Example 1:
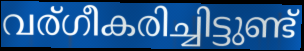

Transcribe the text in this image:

വര്ഗീകരിച്ചിട്ടുണ്ട്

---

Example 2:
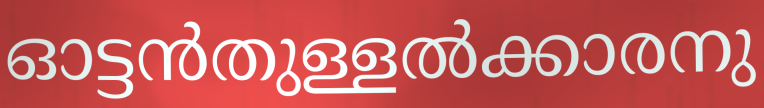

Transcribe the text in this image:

ഓട്ടൻതുള്ളൽക്കാരനു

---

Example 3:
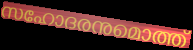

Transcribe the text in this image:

സഹോദരനുമൊത്ത്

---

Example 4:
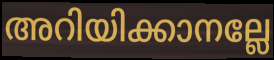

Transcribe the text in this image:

അറിയിക്കാനല്ലേ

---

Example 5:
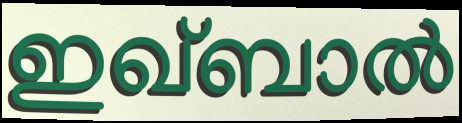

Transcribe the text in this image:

ഇഖ്ബാൽ